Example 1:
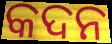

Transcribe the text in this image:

କଦନ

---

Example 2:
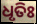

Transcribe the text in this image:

ଧୃତିଃ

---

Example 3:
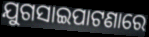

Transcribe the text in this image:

ଯୁଗସାଇପାଟଣାରେ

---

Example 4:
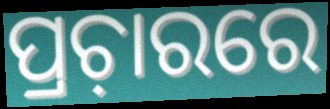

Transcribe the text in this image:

ପ୍ରଚ଼ାରରେ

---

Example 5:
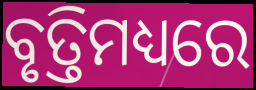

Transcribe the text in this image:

ବୃତ୍ତିମଧ୍ୟରେ